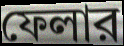
ফেলার